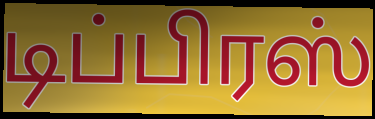
டிப்பிரஸ்